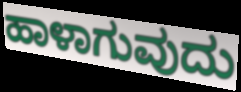
ಹಾಳಾಗುವುದು